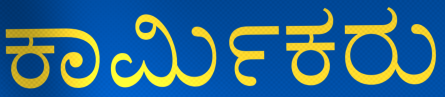
ಕಾರ್ಮಿಕರು